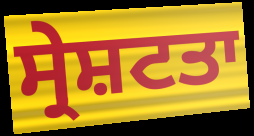
ਸ੍ਰੇਸ਼ਟਤਾ